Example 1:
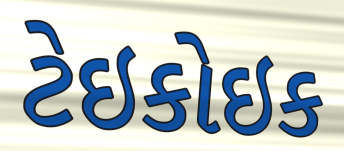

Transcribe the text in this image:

ટેઇકોઇક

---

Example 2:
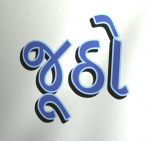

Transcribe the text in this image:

જૂઠો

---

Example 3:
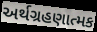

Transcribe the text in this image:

અર્થગ્રહણાત્મક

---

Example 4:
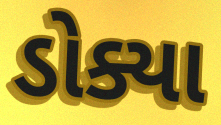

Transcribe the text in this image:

ડોક્યા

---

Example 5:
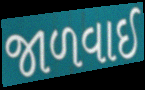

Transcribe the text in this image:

જાળવાઈ